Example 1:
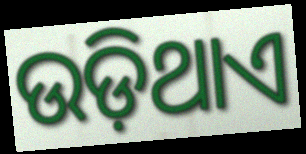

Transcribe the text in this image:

ଉଡ଼ିଥାଏ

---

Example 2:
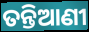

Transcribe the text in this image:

ତନ୍ତିଆଣୀ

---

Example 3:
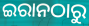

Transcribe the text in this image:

ଇରାନଠାରୁ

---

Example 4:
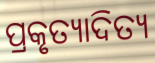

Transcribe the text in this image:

ପ୍ରକୃତ୍ୟାଦିତ୍ୟ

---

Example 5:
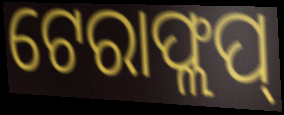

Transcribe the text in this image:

ଟେରାଫ୍ଲପ୍